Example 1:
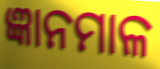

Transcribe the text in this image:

ଜ୍ଞାନମାଳ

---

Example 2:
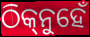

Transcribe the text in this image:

ଠିକ୍‌ନୁହେଁ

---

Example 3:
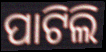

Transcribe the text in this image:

ପାଟିଲି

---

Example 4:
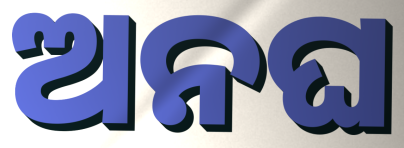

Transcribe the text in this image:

ଅନଘ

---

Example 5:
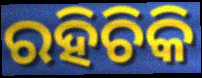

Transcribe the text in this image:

ରହିଚିକି